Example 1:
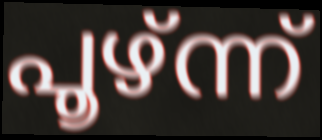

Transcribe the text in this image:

പൂഴ്ന്ന്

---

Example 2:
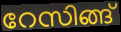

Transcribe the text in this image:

റേസിങ്ങ്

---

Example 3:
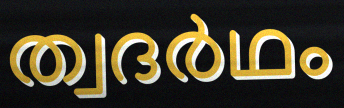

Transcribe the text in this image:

ത്വദർഥം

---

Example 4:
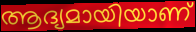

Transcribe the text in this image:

ആദ്യമായിയാണ്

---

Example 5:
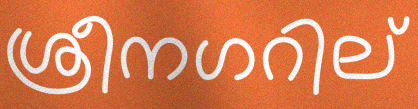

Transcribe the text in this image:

ശ്രീനഗറില്